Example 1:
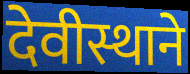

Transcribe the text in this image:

देवीस्थाने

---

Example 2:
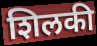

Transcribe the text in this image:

शिलकी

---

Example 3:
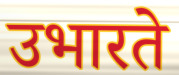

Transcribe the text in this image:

उभारते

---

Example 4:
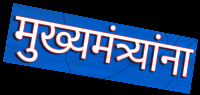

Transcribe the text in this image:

मुख्यमंत्र्यांना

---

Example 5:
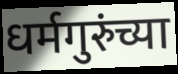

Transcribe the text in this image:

धर्मगुरुंच्या